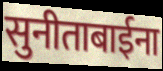
सुनीताबाईना